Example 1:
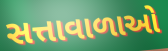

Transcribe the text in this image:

સત્તાવાળાઓ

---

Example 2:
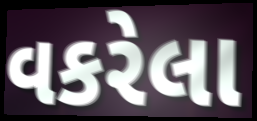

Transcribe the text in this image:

વકરેલા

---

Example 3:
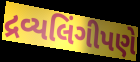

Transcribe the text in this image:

દ્રવ્યલિંગીપણે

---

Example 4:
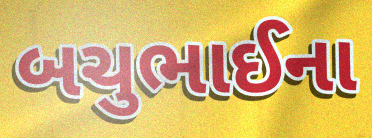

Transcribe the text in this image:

બચુભાઈના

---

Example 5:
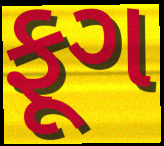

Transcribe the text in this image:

ફૂગ